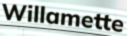
Willamette